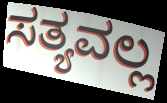
ಸತ್ಯವಲ್ಲ